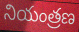
నియంత్రణ